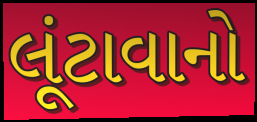
લૂંટાવાનો